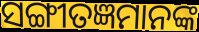
ସଙ୍ଗୀତଜ୍ଞମାନଙ୍କ